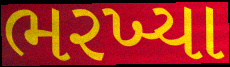
ભરખ્યા